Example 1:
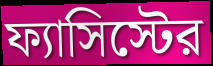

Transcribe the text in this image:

ফ্যাসিস্টের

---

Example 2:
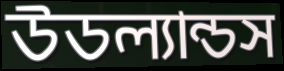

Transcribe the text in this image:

উডল্যান্ডস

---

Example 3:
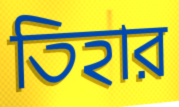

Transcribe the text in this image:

তিহার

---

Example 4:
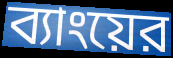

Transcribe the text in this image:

ব্যাংয়ের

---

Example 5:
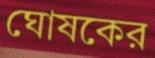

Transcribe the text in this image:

ঘোষকের